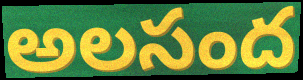
అలసంద